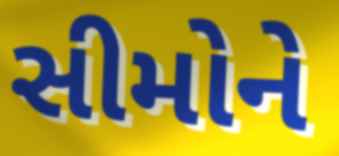
સીમોને